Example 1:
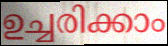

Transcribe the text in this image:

ഉച്ചരിക്കാം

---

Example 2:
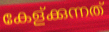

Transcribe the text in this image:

കേള്ക്കുന്നത്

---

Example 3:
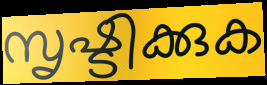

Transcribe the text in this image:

സൃഷ്ടിക്കുക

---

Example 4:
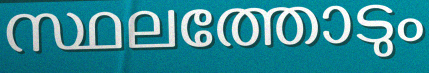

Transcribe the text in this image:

സ്ഥലത്തോടും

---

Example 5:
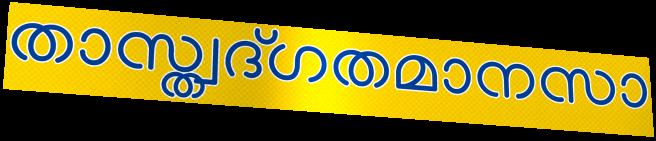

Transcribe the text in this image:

താസ്ത്വദ്ഗതമാനസാ